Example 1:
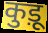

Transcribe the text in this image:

कुड़ू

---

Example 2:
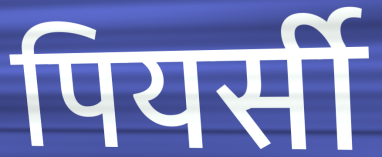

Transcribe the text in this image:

पियर्सी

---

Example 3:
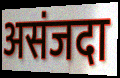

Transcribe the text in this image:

असंजदा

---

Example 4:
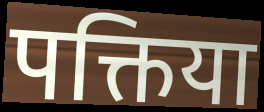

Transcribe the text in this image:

पक्तिया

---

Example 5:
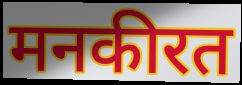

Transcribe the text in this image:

मनकीरत